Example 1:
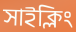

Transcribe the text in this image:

সাইক্লিং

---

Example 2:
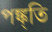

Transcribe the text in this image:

পঙ্ক্তি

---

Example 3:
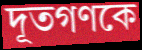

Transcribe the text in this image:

দূতগণকে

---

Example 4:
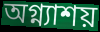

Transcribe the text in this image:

অগ্ন্যাশয়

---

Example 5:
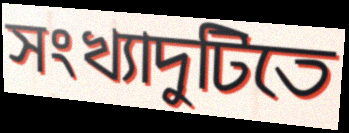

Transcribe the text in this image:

সংখ্যাদুটিতে